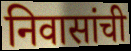
निवासांची